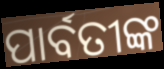
ପାର୍ବତୀଙ୍କ